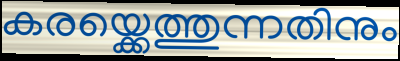
കരയ്ക്കെത്തുന്നതിനും